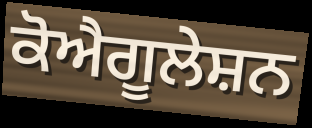
ਕੋਐਗੂਲੇਸ਼ਨ